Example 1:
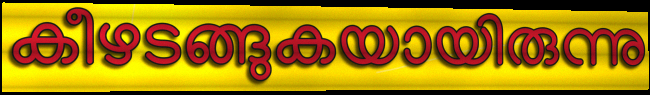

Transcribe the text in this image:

കീഴടങ്ങുകയായിരുന്നു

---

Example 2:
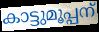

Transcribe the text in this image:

കാട്ടുമൂപ്പന്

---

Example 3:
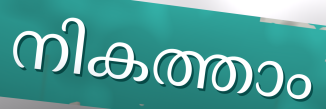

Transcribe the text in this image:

നികത്താം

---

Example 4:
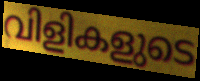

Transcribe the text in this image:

വിളികളുടെ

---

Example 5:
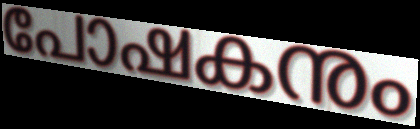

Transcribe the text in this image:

പോഷകനും